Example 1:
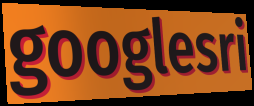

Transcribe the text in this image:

googlesri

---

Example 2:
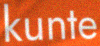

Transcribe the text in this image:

kunte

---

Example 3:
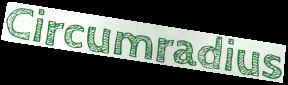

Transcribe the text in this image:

Circumradius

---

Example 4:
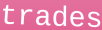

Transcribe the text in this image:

trades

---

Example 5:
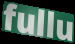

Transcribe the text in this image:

fullu